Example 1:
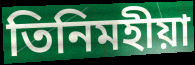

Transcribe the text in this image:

তিনিমহীয়া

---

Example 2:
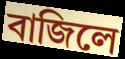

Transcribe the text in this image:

বাজিলে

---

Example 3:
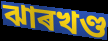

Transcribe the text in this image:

ঝাৰখণ্ড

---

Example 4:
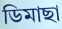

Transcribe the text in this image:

ডিমাছা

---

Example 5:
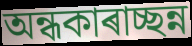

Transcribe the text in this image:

অন্ধকাৰাচ্ছন্ন